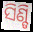
ସିଣ୍ଡି